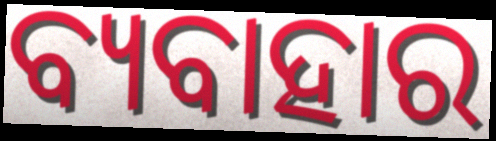
ବ୍ୟବାହାର